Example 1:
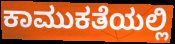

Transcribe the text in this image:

ಕಾಮುಕತೆಯಲ್ಲಿ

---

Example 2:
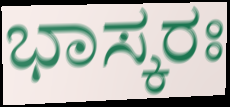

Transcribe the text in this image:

ಭಾಸ್ಕರಃ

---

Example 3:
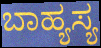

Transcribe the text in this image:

ಬಾಹ್ಯಸ್ಯ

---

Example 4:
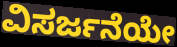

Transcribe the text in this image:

ವಿಸರ್ಜನೆಯೇ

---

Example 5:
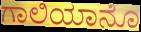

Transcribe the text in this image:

ಗಾಲಿಯಾನೊ